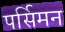
पर्सिमन